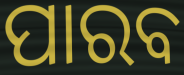
ପାରବ